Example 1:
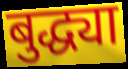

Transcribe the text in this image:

बुद्ध्या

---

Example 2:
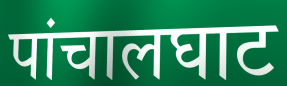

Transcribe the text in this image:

पांचालघाट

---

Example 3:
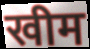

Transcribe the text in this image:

खीम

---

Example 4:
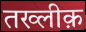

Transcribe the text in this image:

तख्लीक़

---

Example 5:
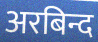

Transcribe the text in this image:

अरबिन्द